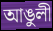
আঙুলী